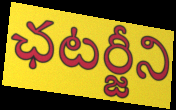
ఛటర్జీని